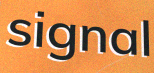
signal